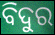
ବିଦୁର